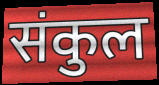
संकुल